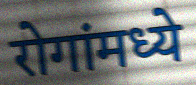
रोगांमध्ये